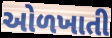
ઓળખાતી